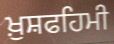
ਖ਼ੁਸ਼ਫਹਿਮੀ